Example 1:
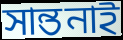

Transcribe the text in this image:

সান্তনাই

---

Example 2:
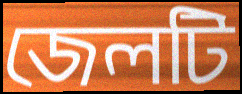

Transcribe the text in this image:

জেলটি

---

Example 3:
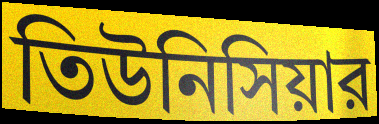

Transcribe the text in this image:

তিউনিসিয়ার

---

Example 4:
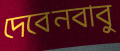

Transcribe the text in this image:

দেবেনবাবু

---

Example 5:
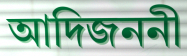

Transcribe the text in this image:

আদিজননী